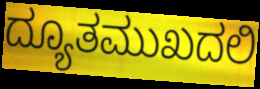
ದ್ಯೂತಮುಖದಲಿ